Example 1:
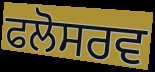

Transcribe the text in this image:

ਫਲੋਸਰਵ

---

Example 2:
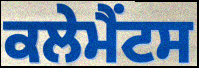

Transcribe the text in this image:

ਕਲੇਮੈਂਟਸ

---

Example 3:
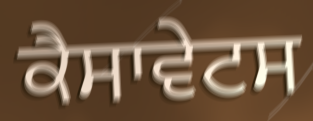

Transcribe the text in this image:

ਕੈਸਾਵੇਟਸ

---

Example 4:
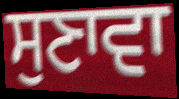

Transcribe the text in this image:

ਸੁਣਾਵਾ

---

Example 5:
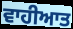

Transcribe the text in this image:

ਵਾਹੀਆਤ